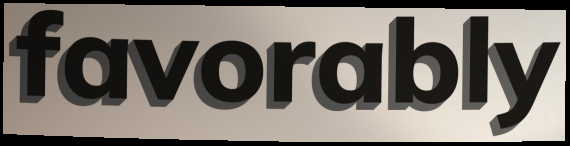
favorably